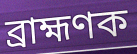
ব্ৰাহ্মণক